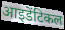
आइडेंटिकल